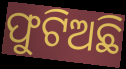
ଫୁଟିଅଛି